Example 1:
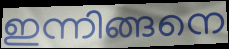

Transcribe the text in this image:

ഇന്നിങ്ങനെ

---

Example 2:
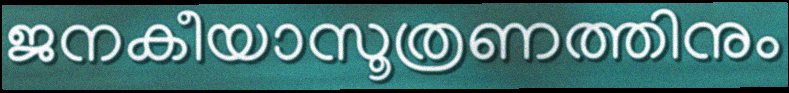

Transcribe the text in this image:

ജനകീയാസൂത്രണത്തിനും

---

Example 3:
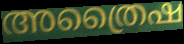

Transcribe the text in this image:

അത്രൈഷ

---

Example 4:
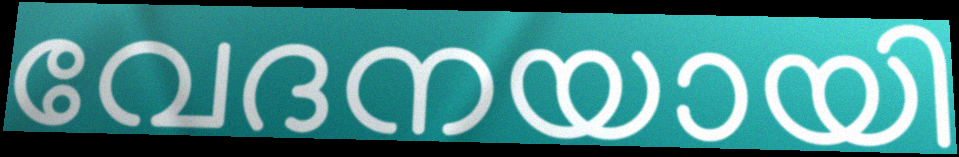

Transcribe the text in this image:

വേദനയായി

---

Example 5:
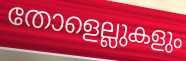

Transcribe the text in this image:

തോളെല്ലുകളും